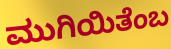
ಮುಗಿಯಿತೆಂಬ